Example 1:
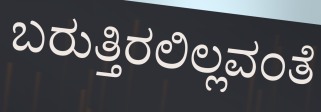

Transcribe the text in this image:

ಬರುತ್ತಿರಲಿಲ್ಲವಂತೆ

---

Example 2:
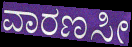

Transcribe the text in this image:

ವಾರಣಸೀ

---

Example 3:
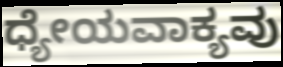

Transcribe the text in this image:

ಧ್ಯೇಯವಾಕ್ಯವು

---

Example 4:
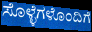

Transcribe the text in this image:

ಸೊಳ್ಳೆಗಳೊಂದಿಗೆ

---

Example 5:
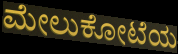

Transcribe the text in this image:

ಮೇಲುಕೋಟೆಯ